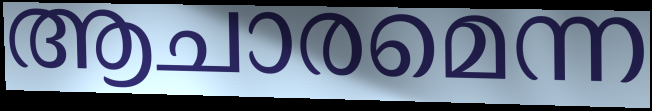
ആചാരമെന്ന